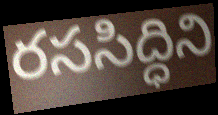
రససిద్ధిని